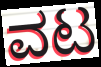
ವಟ